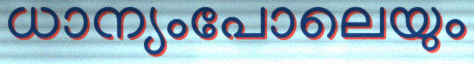
ധാന്യംപോലെയും